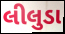
લીલુડા